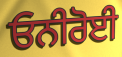
ਓਨੀਰੋਈ